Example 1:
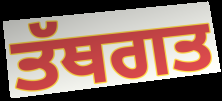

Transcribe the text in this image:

ਤੱਥਗਤ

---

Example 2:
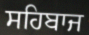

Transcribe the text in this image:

ਸਹਿਬਾਜ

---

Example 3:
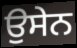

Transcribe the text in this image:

ਉਸੇਨ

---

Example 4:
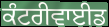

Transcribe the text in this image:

ਕੰਟਰੀਵਾਈਡ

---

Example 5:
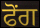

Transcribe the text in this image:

ਫੋਂਗ